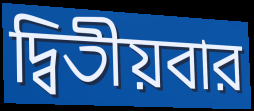
দ্বিতীয়বার